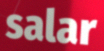
salar